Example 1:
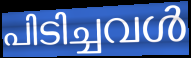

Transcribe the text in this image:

പിടിച്ചവൾ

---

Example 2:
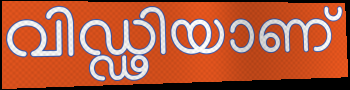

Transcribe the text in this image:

വിഡ്ഢിയാണ്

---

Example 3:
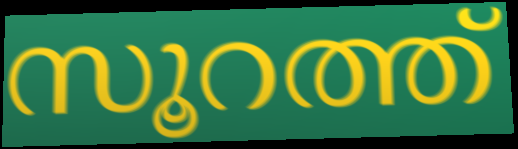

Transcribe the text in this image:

സൂറത്ത്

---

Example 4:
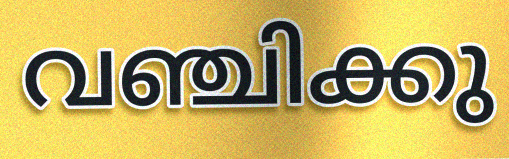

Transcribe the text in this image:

വഞ്ചിക്കു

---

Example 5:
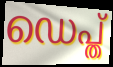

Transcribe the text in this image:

ഡെപ്ത്